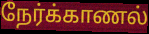
நேர்க்காணல்